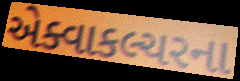
એક્વાકલ્ચરના